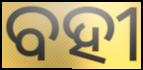
ବହୀ